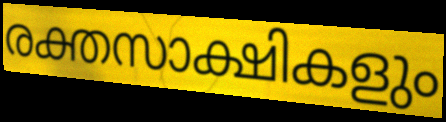
രക്തസാക്ഷികളും